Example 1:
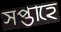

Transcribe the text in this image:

সপ্তাহে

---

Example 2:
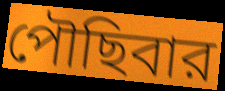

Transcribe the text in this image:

পৌছিবার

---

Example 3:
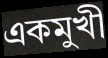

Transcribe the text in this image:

একমুখী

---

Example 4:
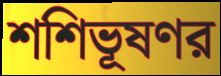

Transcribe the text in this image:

শশিভূষণর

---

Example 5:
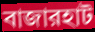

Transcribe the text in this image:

বাজারহাট